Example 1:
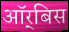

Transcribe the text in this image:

ऑर्बिस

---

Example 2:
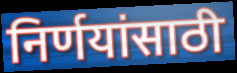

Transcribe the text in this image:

निर्णयांसाठी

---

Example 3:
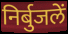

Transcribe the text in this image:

निर्बुजलें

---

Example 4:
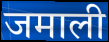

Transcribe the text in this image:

जमाली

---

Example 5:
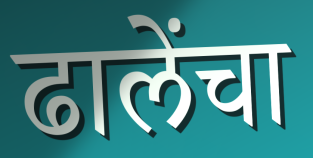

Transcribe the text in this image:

ढालेंचा